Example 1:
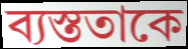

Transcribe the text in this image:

ব্যস্ততাকে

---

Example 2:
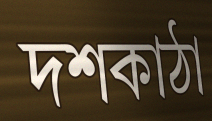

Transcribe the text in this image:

দশকাঠা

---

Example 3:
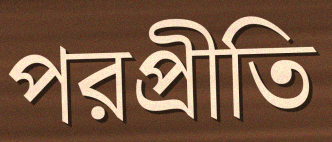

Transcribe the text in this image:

পরপ্রীতি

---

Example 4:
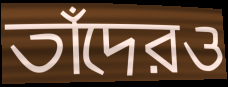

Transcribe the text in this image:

তাঁদেরও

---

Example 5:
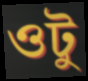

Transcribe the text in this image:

ওটু